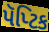
પૅપ્ટિક